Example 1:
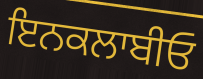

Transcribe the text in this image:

ਇਨਕਲਾਬੀਓ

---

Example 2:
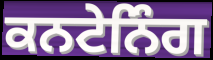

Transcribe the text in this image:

ਕਨਟੇਨਿੰਗ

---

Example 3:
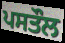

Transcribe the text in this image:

ਪਸਤੌਲ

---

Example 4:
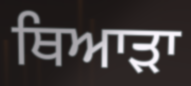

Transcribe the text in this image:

ਥਿਆੜਾ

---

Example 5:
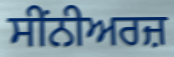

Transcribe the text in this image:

ਸੀਂਨੀਅਰਜ਼